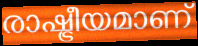
രാഷ്ട്രീയമാണ്